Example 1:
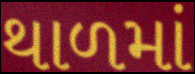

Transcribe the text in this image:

થાળમાં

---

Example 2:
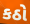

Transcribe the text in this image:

કઠો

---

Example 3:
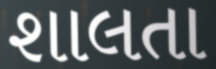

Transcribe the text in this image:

શાલતા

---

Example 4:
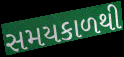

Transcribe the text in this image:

સમયકાળથી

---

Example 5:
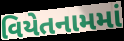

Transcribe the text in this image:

વિયેતનામમાં